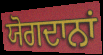
ਯੋਗਦਾਨਾਂ